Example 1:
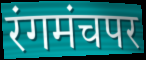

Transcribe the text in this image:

रंगमंचपर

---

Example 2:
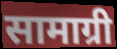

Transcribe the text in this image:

सामाग्री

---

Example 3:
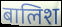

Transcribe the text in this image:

बालिश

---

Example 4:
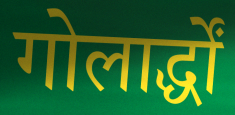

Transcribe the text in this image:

गोलार्द्धों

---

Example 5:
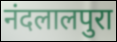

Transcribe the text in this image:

नंदलालपुरा